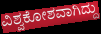
ವಿಶ್ವಕೋಶವಾಗಿದ್ದು